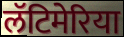
लॅटिमेरिया